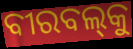
ବୀରବଲ୍‌କୁ